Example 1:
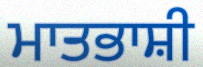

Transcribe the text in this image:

ਮਾਤਭਾਸ਼ੀ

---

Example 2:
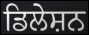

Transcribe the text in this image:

ਡਿਲੇਸ਼ਨ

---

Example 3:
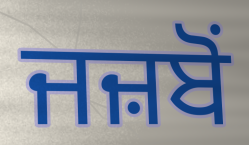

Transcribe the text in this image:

ਜਜ਼ਬੋਂ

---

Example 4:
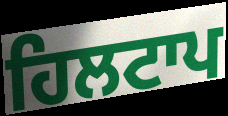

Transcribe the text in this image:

ਹਿਲਟਾਪ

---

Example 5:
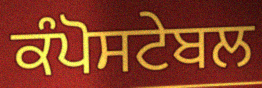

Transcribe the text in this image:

ਕੰਪੋਸਟੇਬਲ